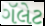
ગૅલેટ